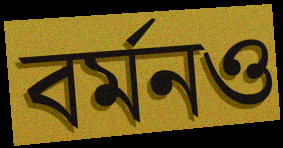
বর্মনও